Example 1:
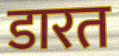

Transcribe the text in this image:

डारत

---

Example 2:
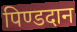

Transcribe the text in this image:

पिण्डदान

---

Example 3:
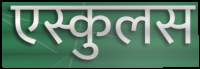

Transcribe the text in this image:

एस्कुलस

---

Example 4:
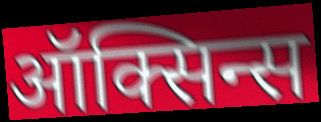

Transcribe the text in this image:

ऑक्सिन्स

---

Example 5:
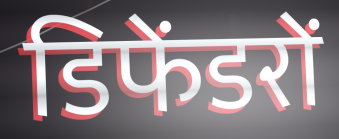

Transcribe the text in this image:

डिफेंडरों